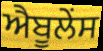
ਐਬੂਲੇਂਸ